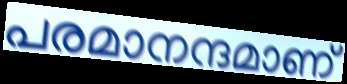
പരമാനന്ദമാണ്